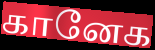
கானேக